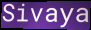
Sivaya